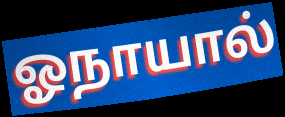
ஓநாயால்